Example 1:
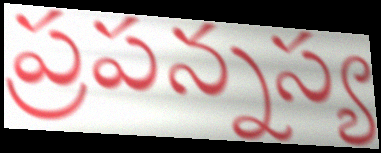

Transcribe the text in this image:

ప్రపన్నస్య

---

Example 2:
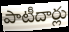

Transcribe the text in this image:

పాటీదార్లు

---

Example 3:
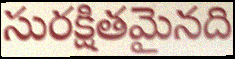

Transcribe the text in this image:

సురక్షితమైనది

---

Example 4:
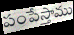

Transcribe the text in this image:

పంపేస్తాము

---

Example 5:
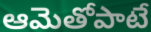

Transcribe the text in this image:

ఆమెతోపాటే